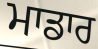
ਮਾਡਾਰ